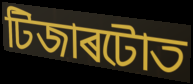
টিজাৰটোত